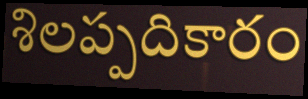
శిలప్పదికారం